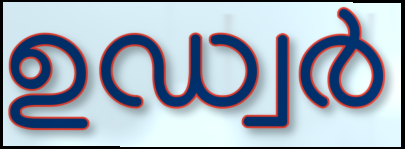
ഉഡ്വർ